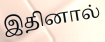
இதினால்